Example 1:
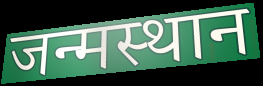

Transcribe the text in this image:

जन्मस्थान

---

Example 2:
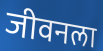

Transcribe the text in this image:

जीवनला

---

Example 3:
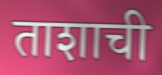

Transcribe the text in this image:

ताशाची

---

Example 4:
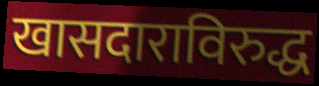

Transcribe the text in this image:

खासदाराविरुद्ध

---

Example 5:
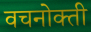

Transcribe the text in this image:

वचनोक्ती